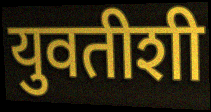
युवतीशी